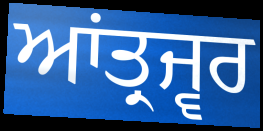
ਆਂਤ੍ਰਜ੍ਵਰ